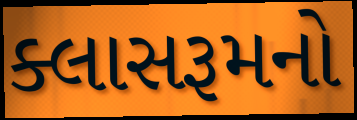
ક્લાસરૂમનો